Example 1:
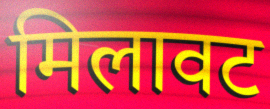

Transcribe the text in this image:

मिलावट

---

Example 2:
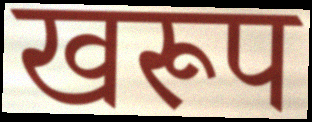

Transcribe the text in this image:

खरूप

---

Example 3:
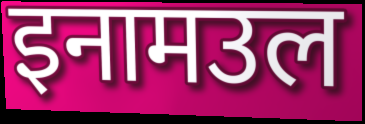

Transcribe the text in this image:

इनामउल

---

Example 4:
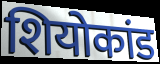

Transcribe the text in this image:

शियोकांड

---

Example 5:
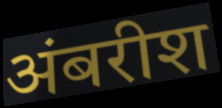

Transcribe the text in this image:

अंबरीश